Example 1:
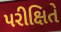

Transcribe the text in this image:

પરીક્ષિતે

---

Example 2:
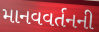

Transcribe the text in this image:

માનવવર્તનની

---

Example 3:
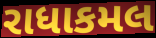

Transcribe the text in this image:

રાધાકમલ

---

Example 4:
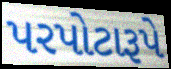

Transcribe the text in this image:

પરપોટારૂપે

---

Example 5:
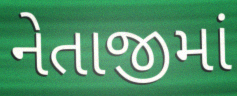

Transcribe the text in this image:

નેતાજીમાં